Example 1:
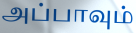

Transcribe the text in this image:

அப்பாவும்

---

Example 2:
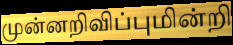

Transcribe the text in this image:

முன்னறிவிப்புமின்றி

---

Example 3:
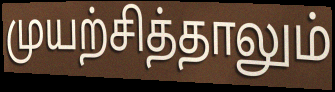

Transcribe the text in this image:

முயற்சித்தாலும்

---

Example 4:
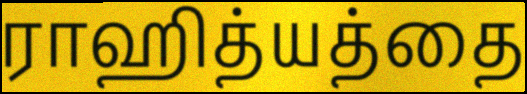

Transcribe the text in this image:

ராஹித்யத்தை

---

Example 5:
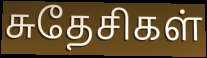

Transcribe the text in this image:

சுதேசிகள்